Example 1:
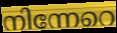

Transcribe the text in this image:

നിന്നേറെ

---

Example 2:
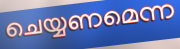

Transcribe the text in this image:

ചെയ്യണമെന്ന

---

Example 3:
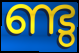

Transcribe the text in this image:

ണ്ടു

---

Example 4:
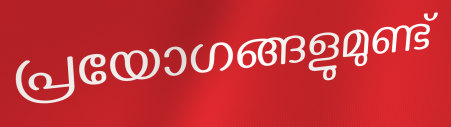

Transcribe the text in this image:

പ്രയോഗങ്ങളുമുണ്ട്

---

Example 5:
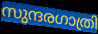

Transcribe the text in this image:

സുന്ദരഗാത്രി